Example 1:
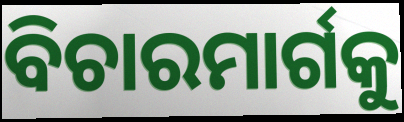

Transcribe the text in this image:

ବିଚାରମାର୍ଗକୁ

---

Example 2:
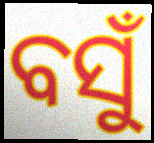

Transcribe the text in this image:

ବସୁଁ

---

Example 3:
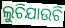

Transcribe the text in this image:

ଲୁଚିଯାଉଚି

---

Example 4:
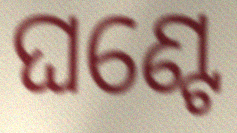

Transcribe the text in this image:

ଘଣ୍ଟେ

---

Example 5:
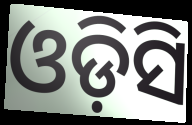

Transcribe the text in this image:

ଓଡ଼ିସି